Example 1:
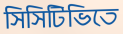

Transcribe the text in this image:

সিসিটিভিতে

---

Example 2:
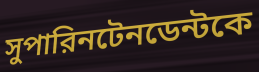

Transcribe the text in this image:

সুপারিনটেনডেন্টকে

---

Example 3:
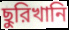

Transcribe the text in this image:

ছুরিখানি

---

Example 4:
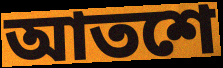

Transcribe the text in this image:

আতশে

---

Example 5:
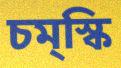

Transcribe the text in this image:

চম্‌স্কি